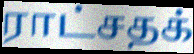
ராட்சதக்